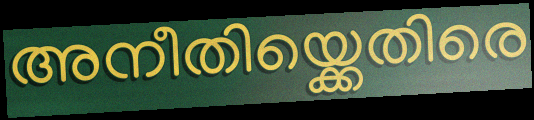
അനീതിയ്ക്കെതിരെ